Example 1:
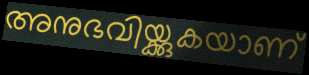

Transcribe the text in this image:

അനുഭവിയ്ക്കുകയാണ്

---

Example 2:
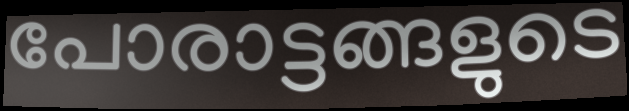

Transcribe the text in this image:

പോരാട്ടങ്ങളുടെ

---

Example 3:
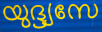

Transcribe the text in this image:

യുദ്ദ്യസേ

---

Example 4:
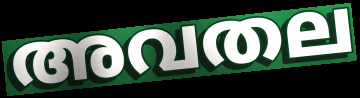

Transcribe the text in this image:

അവതല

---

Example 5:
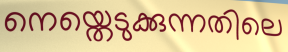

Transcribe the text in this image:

നെയ്തെടുക്കുന്നതിലെ